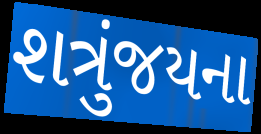
શત્રુંજયના